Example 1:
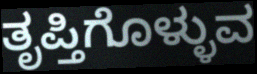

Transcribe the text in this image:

ತೃಪ್ತಿಗೊಳ್ಳುವ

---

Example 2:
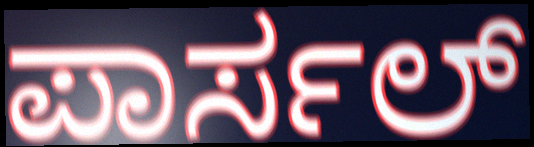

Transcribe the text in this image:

ಪಾರ್ಸಲ್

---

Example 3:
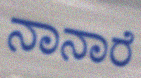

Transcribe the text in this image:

ನಾನಾರೆ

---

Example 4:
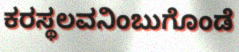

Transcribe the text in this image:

ಕರಸ್ಥಲವನಿಂಬುಗೊಂಡೆ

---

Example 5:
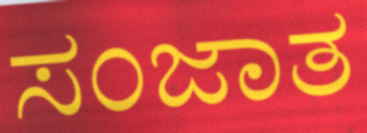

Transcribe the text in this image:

ಸಂಜಾತ